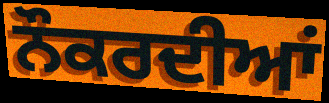
ਨੌਕਰਦੀਆਂ